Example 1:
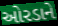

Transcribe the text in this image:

ઓરડાને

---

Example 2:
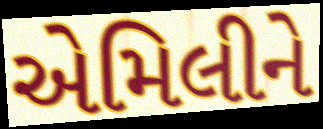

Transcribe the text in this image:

એમિલીને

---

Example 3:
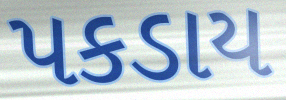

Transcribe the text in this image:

પકડાય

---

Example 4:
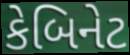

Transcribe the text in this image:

કેબિનેટ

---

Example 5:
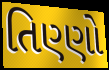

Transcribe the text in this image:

તિણ્ણો